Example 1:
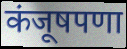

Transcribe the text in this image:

कंजूषपणा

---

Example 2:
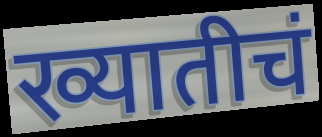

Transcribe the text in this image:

ख्यातीचं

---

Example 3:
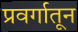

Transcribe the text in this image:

प्रवर्गातून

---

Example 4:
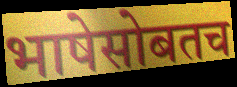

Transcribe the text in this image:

भाषेसोबतच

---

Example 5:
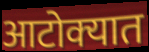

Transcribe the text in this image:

आटोक्‍यात